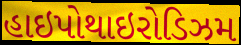
હાઇપોથાઇરોડિઝમ